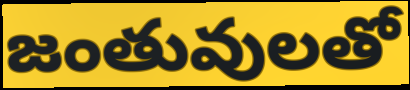
జంతువులతో